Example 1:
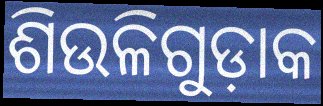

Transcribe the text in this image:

ଶିଉଳିଗୁଡ଼ାକ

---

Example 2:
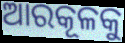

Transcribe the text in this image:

ଆରକୂଳକୁ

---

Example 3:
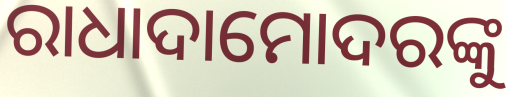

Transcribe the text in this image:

ରାଧାଦାମୋଦରଙ୍କୁ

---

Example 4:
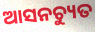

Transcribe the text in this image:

ଆସନଚ୍ୟୁତ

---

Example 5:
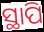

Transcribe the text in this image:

ସ୍ଥାପି